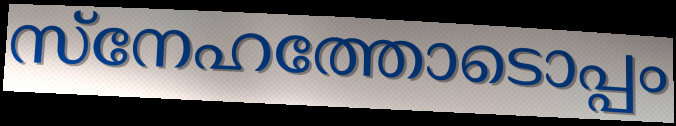
സ്നേഹത്തോടൊപ്പം